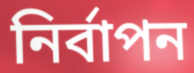
নির্বাপন